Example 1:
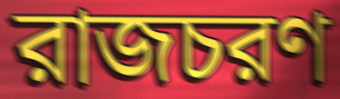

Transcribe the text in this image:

রাজচরণ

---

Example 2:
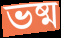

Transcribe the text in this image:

ভষ্ম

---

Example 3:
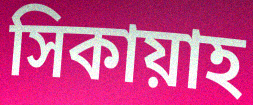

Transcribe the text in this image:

সিকায়াহ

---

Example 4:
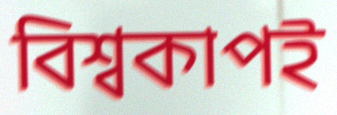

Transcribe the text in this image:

বিশ্বকাপই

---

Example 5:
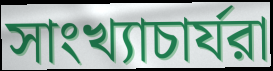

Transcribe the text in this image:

সাংখ্যাচার্যরা